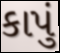
કાપું